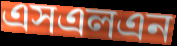
এসএলএন